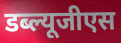
डब्ल्यूजीएस